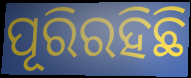
ପୂରିରହିଛି